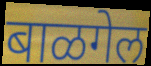
बाळगेल